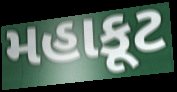
મહાકૂટ